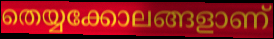
തെയ്യക്കോലങ്ങളാണ്